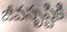
జీవసృష్టికి